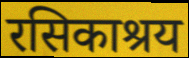
रसिकाश्रय